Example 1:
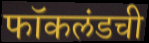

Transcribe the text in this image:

फॉकलंडची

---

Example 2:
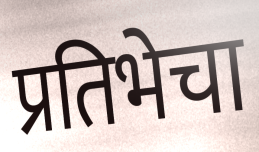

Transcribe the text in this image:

प्रतिभेचा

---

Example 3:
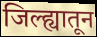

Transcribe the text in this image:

जिल्ह्यातून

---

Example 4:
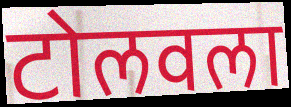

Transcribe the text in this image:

टोलवला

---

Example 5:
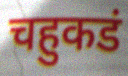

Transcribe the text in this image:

चहुकडं